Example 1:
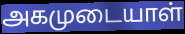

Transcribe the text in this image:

அகமுடையாள்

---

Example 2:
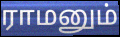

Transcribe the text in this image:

ராமனும்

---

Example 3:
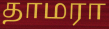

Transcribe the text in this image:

தாமரா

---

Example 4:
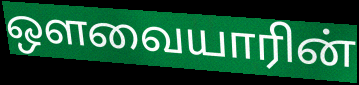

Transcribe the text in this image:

ஔவையாரின்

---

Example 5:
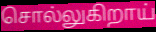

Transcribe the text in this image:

சொல்லுகிறாய்